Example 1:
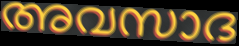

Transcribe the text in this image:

അവസാദ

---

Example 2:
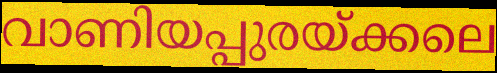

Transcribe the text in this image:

വാണിയപ്പുരയ്ക്കലെ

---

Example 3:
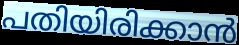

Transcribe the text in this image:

പതിയിരിക്കാൻ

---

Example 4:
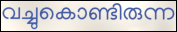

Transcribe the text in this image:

വച്ചുകൊണ്ടിരുന്ന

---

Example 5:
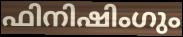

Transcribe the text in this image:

ഫിനിഷിംഗും